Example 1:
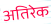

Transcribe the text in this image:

अतिरेक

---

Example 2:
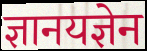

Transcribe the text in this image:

ज्ञानयज्ञेन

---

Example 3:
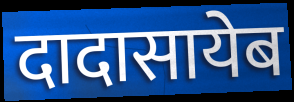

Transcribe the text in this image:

दादासायेब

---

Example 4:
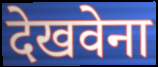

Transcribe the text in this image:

देखवेना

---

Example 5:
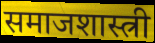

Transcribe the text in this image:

समाजशास्त्री